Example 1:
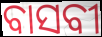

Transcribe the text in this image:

ବାସବୀ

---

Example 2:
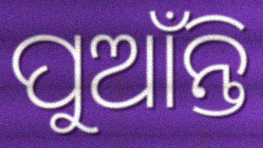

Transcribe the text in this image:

ପୁଆଁନ୍ତି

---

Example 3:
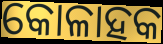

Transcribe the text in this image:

କୋଳାହକ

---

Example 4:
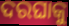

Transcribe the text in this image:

ଦରଘାକୁ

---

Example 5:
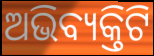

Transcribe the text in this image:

ଅଭିବ୍ୟକ୍ତିଟି